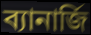
ব্যানার্জি